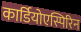
कार्डियोएस्पिरिन